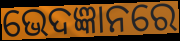
ଭେଦଜ୍ଞାନରେ